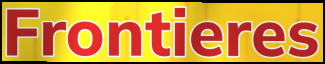
Frontieres